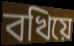
বখিয়ে